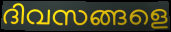
ദിവസങ്ങളെ